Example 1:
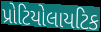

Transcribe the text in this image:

પ્રોટિયોલાયટિક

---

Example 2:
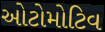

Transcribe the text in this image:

ઓટોમોટિવ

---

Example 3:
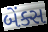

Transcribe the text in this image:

બેંક્સ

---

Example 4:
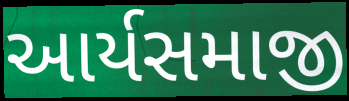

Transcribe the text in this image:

આર્યસમાજી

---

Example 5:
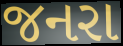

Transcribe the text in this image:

જનરા